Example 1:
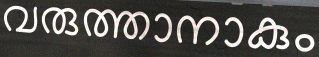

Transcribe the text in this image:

വരുത്താനാകും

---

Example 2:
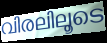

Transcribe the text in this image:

വിരലിലൂടെ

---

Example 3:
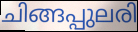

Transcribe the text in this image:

ചിങ്ങപ്പുലരി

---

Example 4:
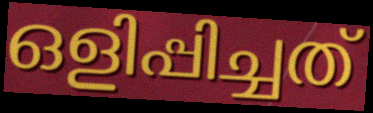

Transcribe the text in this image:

ഒളിപ്പിച്ചത്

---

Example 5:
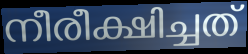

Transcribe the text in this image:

നീരീക്ഷിച്ചത്